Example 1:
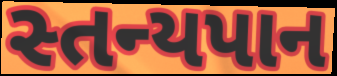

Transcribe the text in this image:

સ્તન્યપાન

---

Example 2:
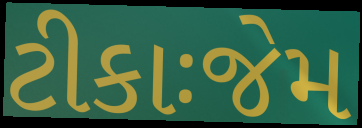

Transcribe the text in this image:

ટીકાઃજેમ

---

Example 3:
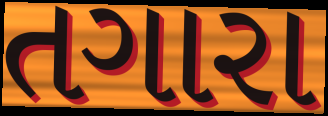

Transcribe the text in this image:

તગારા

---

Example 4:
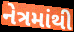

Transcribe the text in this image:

નેત્રમાંથી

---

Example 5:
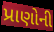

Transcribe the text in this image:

પ્રાણોની